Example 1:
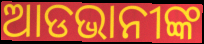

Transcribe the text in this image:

ଆଡଭାନୀଙ୍କ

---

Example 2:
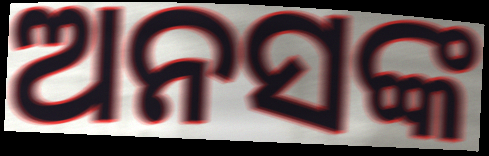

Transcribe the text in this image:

ଅନସଙ୍କ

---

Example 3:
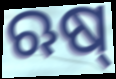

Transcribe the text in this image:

ଋଷ୍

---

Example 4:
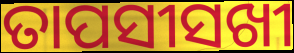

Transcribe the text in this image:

ତାପସୀସଖୀ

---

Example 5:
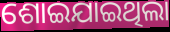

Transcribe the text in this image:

ଶୋଇଯାଇଥିଲା